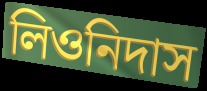
লিওনিদাস